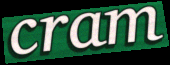
cram